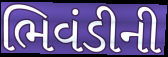
ભિવંડીની